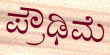
ಪ್ರೌಢಿಮೆ